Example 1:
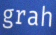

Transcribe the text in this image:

grah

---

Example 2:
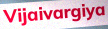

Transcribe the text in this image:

Vijaivargiya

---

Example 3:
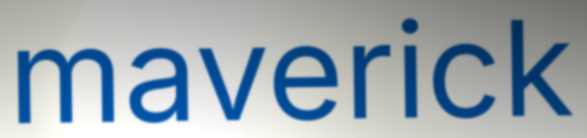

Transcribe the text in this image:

maverick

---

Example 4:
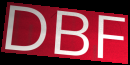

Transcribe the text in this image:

DBF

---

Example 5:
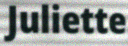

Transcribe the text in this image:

Juliette